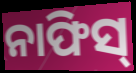
ନାଫିସ୍